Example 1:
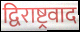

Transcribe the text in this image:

द्विराष्ट्रवाद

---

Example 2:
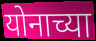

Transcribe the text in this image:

योनाच्या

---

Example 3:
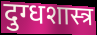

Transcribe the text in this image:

दुग्धशास्त्र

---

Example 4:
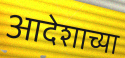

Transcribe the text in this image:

आदेशाच्या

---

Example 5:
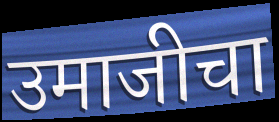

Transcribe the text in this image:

उमाजीचा